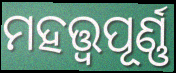
ମହତ୍ତ୍ୱପୂର୍ଣ୍ଣ